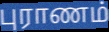
புராணம்